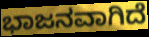
ಭಾಜನವಾಗಿದೆ